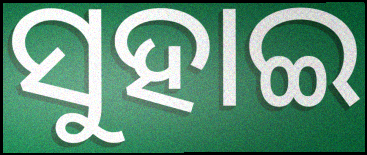
ସୁହାଇ